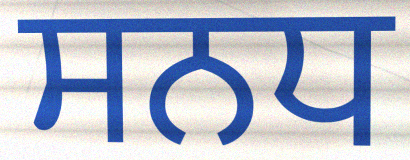
ਸਨਧ